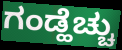
ಗಂಡ್ಹೆಚ್ಚು